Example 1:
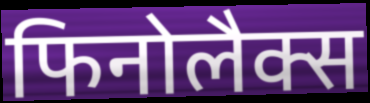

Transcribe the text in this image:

फिनोलैक्स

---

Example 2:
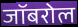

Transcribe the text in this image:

जॉबरोल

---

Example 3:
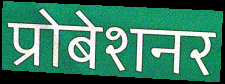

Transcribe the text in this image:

प्रोबेशनर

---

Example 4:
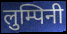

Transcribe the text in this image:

लुम्पिनी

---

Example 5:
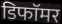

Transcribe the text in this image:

डिफॉमर